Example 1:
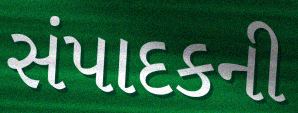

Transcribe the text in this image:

સંપાદકની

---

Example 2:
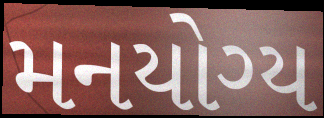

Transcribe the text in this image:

મનયોગ્ય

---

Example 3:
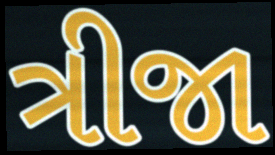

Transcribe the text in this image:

ત્રીજા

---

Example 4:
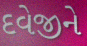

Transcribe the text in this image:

દવેજીને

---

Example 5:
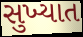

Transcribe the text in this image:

સુખ્યાત